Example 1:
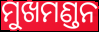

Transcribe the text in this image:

ମୁଖମଣ୍ଡନ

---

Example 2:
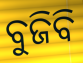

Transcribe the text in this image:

ବୁଜିବି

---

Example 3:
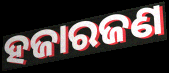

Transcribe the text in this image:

ହଜାରଜଣ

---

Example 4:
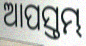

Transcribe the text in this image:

ଆପସ୍ତମ୍ଭ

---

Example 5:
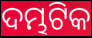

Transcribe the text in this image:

ଦମ୍ଭଟିକ